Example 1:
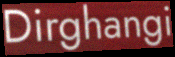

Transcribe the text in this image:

Dirghangi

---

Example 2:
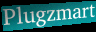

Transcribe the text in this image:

Plugzmart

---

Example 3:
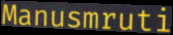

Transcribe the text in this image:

Manusmruti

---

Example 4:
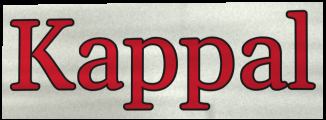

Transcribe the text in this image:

Kappal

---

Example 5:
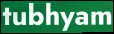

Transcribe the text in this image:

tubhyam